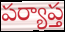
పర్యాప్త